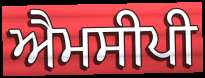
ਐਮਸੀਪੀ